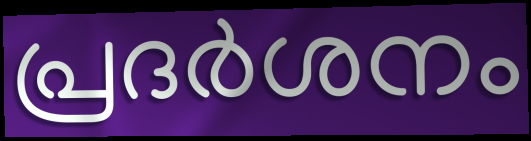
പ്രദർശനം